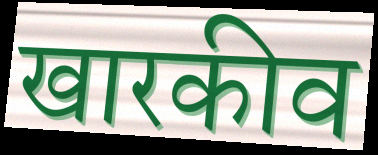
खारकीव